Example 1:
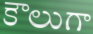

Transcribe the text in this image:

కౌలుగా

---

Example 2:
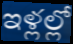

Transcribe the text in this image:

ఇళ్లల్లో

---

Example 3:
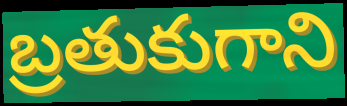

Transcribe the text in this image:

బ్రతుకుగాని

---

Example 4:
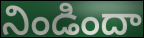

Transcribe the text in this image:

నిండిందా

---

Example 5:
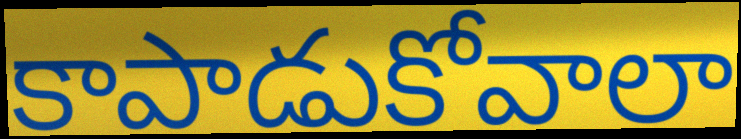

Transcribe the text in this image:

కాపాడుకోవాలా